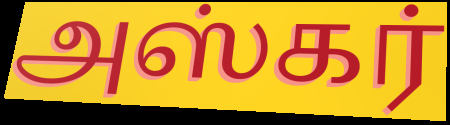
அஸ்கர்